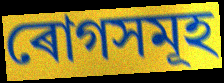
ৰোগসমূহ